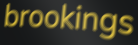
brookings